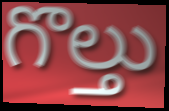
గొల్తు